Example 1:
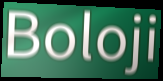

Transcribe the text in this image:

Boloji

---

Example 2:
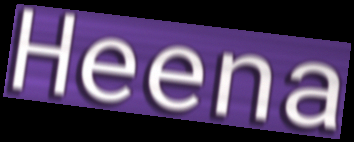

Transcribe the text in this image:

Heena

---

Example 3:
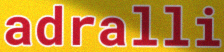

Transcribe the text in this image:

adralli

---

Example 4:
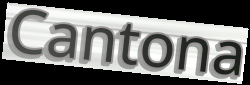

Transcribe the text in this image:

Cantona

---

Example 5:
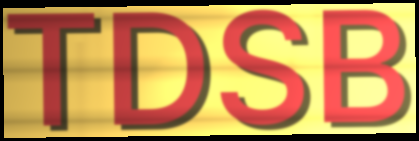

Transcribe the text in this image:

TDSB